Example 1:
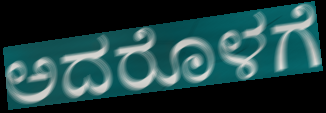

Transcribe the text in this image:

ಅದರೊಳಗೆ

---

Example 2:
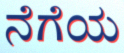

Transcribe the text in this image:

ನೆಗೆಯ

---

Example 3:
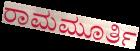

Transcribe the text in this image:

ರಾಮಮೂರ್ತಿ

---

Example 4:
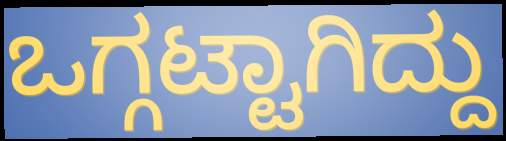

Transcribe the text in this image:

ಒಗ್ಗಟ್ಟಾಗಿದ್ದು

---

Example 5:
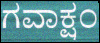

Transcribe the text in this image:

ಗವಾಕ್ಷಂ